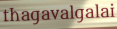
thagavalgalai